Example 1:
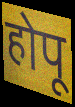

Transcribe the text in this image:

होपू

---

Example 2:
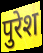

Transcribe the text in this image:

पुरेश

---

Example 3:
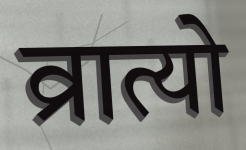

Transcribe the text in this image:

व्रात्यो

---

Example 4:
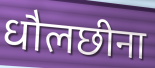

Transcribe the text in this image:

धौलछीना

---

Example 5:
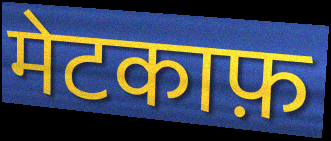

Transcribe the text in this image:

मेटकाफ़